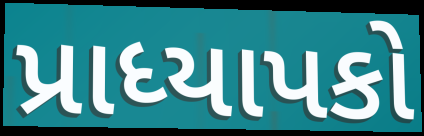
પ્રાધ્યાપકો